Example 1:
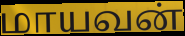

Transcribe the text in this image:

மாயவன்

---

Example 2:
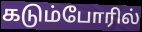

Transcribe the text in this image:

கடும்போரில்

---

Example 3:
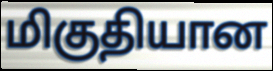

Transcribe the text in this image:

மிகுதியான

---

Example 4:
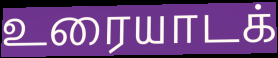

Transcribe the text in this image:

உரையாடக்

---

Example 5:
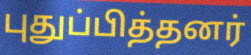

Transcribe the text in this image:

புதுப்பித்தனர்